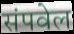
संपवेल